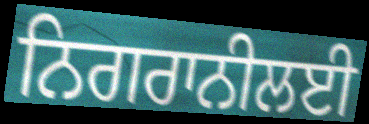
ਨਿਗਰਾਨੀਲਈ